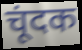
चूंदक